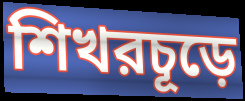
শিখরচূড়ে